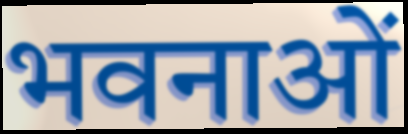
भवनाओं